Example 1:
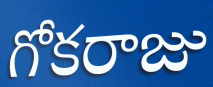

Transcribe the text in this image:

గోకరాజు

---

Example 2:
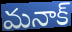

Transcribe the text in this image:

మనాక్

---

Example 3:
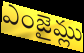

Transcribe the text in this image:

ఎంజైమ్లు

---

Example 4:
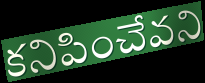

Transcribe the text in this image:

కనిపించేవని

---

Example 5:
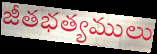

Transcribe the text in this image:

జీతభత్యములు